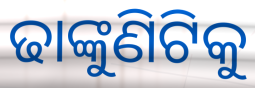
ଢାଙ୍କୁଣିଟିକୁ